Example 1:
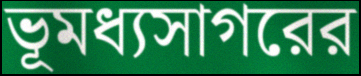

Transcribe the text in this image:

ভূমধ্যসাগরের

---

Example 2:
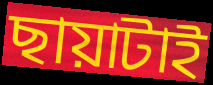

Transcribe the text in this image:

ছায়াটাই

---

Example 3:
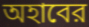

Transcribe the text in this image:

অহাবের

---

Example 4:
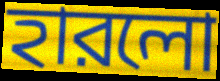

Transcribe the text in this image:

হারলো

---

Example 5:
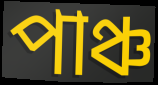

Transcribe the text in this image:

পাঞ্চ